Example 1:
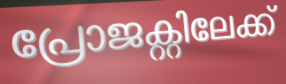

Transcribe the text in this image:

പ്രോജക്റ്റിലേക്ക്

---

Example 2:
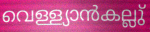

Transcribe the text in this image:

വെള്ള്യാൻകല്ലു്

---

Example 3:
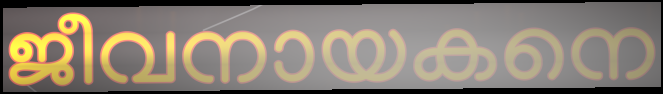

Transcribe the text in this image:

ജീവനായകനെ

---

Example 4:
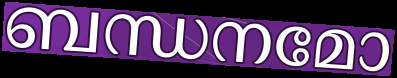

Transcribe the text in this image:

ബന്ധനമോ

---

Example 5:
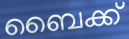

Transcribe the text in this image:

ബൈക്ക്